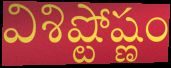
విశిష్టోష్ణం